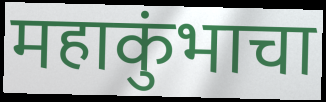
महाकुंभाचा